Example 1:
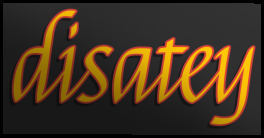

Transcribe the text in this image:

disatey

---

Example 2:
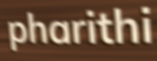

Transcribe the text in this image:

pharithi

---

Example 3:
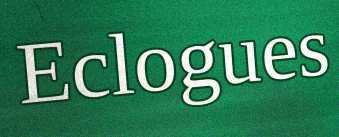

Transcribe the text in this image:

Eclogues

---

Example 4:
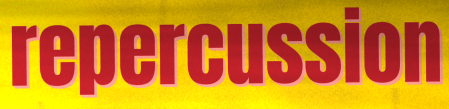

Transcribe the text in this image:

repercussion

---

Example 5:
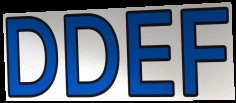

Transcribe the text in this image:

DDEF